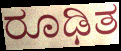
ರೂಢಿತ